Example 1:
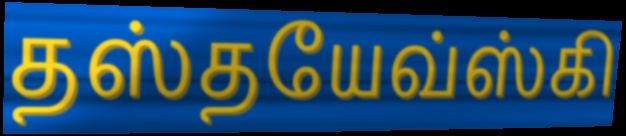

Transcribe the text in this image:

தஸ்தயேவ்ஸ்கி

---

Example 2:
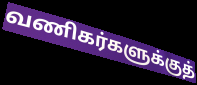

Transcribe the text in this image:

வணிகர்களுக்குத்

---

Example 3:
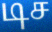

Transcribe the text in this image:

டிச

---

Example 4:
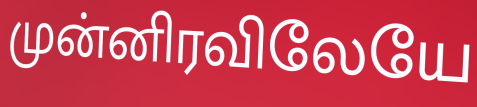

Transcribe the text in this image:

முன்னிரவிலேயே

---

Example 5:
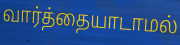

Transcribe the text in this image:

வார்த்தையாடாமல்